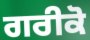
ਗਰੀਕੋ